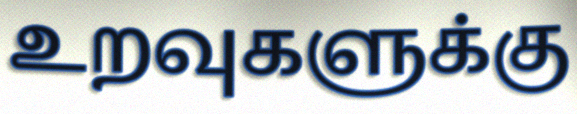
உறவுகளுக்கு